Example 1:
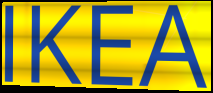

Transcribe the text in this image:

IKEA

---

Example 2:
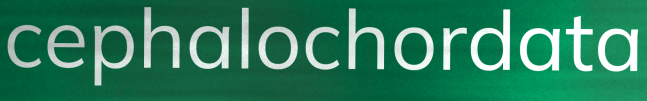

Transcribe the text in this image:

cephalochordata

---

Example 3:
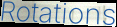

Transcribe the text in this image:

Rotations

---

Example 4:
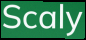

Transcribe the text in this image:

Scaly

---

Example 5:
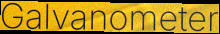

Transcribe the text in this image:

Galvanometer